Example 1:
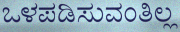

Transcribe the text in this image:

ಒಳಪಡಿಸುವಂತಿಲ್ಲ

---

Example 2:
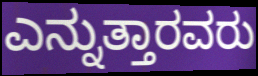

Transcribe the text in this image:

ಎನ್ನುತ್ತಾರವರು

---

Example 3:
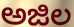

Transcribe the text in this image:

ಅಜಿಲ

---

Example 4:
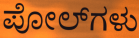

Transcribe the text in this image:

ಪೋಲ್‌ಗಳು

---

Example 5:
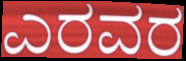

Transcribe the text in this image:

ಎರವರ